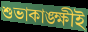
শুভাকাঙ্ক্ষীই